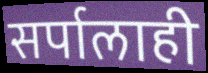
सर्पालाही